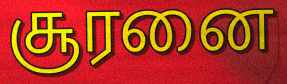
சூரனை